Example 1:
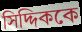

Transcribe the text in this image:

সিদ্দিককে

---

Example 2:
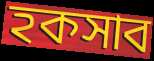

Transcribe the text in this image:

হকসাব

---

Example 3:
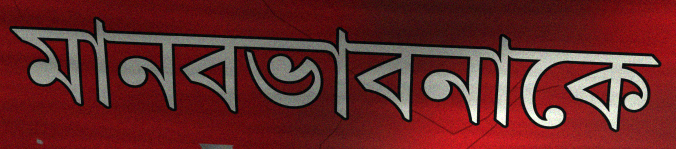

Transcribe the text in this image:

মানবভাবনাকে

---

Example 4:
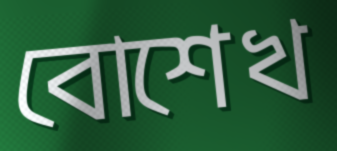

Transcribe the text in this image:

বোশেখ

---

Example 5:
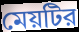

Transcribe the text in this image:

মেয়টির